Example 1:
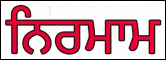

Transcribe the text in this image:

ਨਿਰਮਾਮ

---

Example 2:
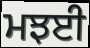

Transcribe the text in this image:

ਮਝਈ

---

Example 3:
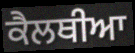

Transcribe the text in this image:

ਕੈਲਥੀਆ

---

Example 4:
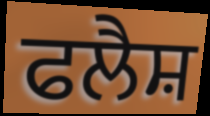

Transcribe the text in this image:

ਫਲੈਸ਼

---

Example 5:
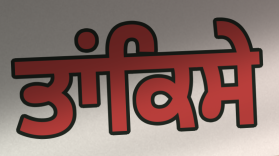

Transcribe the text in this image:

ਤਾਂਕਿਸੇ